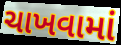
ચાખવામાં